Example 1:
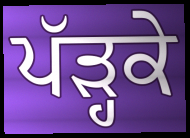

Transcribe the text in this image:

ਪੱੜ੍ਹਕੇ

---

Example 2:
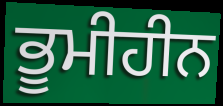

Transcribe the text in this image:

ਭੂਮੀਹੀਨ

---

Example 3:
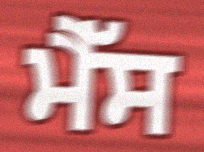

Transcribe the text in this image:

ਮੈੱਸ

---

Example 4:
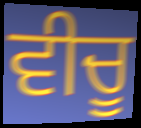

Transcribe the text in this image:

ਵੀਚੂ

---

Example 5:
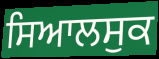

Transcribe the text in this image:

ਸਿਆਲਸੁਕ